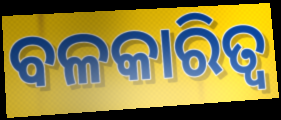
ବଳକାରିତ୍ୱ